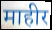
माहीर